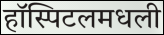
हॉस्पिटलमधली